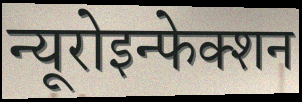
न्यूरोइन्फेक्शन